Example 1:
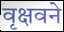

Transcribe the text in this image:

वृक्षवने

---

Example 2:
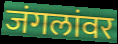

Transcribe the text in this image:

जंगलांवर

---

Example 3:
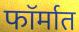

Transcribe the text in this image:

फॉर्मात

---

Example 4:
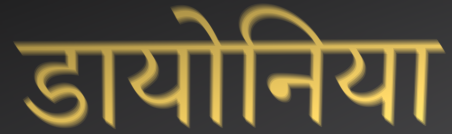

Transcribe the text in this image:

डायोनिया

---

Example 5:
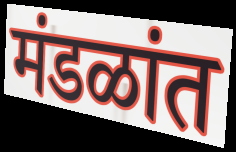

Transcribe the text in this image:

मंडळांत